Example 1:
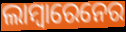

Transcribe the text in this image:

ଲାମ୍ବାରେନେର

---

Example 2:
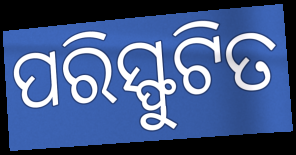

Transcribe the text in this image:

ପରିସ୍ଫୁଟିତ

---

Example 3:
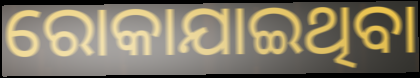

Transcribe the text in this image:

ରୋକାଯାଇଥିବା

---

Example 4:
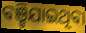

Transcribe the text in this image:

ବଞ୍ଚିଯାଇଥିବା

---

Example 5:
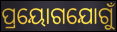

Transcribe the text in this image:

ପ୍ରୟୋଗଯୋଗୁଁ